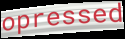
opressed